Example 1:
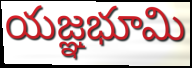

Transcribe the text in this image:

యజ్ఞభూమి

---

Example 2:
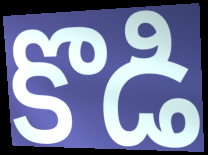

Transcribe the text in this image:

కొడి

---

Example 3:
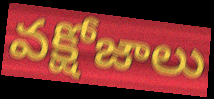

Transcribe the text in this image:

వక్షోజాలు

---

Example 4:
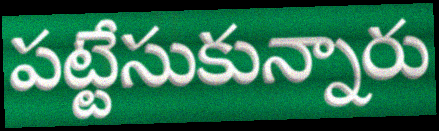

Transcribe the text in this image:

పట్టేసుకున్నారు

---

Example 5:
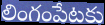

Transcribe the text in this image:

లింగంపేటకు